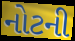
નોટની